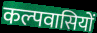
कल्पवासियों